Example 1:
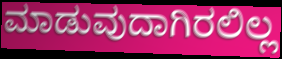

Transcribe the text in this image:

ಮಾಡುವುದಾಗಿರಲಿಲ್ಲ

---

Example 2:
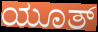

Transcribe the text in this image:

ಯೂತ್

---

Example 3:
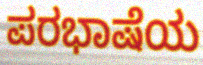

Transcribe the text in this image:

ಪರಭಾಷೆಯ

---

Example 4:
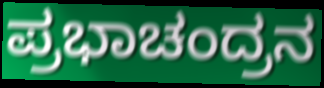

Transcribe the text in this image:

ಪ್ರಭಾಚಂದ್ರನ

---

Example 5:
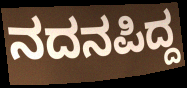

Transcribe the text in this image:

ನದನಪಿದ್ದ